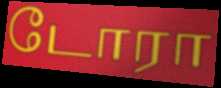
டோரா